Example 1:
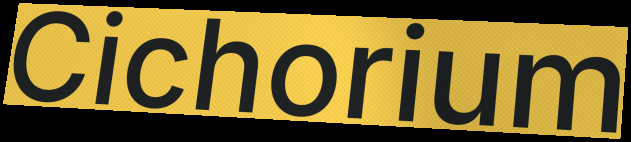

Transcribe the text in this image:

Cichorium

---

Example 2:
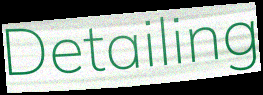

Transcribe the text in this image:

Detailing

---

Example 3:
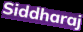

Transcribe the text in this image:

Siddharaj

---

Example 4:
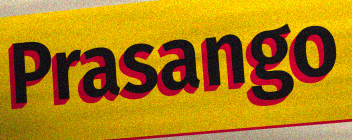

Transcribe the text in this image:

Prasango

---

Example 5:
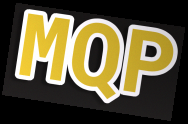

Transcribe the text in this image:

MQP